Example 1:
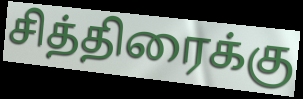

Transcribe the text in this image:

சித்திரைக்கு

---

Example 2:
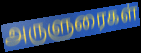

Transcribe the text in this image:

அருளுரைகள்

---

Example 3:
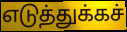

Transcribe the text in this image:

எடுத்துக்கச்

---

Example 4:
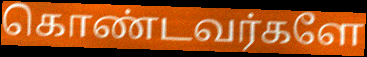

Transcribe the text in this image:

கொண்டவர்களே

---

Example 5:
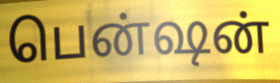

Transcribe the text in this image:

பென்ஷன்